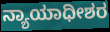
ನ್ಯಾಯಾಧೀಶರ